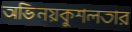
অভিনয়কুশলতার